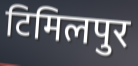
टिमिलपुर